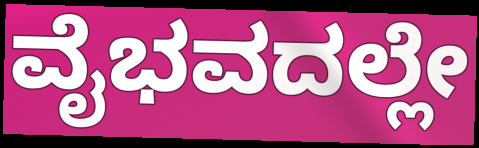
ವೈಭವದಲ್ಲೇ